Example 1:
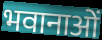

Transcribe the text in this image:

भवानाओं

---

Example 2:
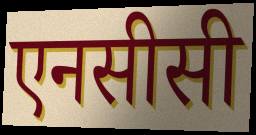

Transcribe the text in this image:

एनसीसी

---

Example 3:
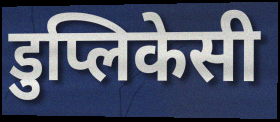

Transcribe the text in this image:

डुप्लिकेसी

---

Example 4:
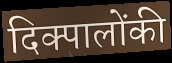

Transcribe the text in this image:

दिक्पालोंकी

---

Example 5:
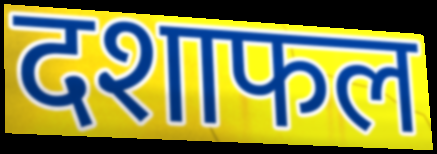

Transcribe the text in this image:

दशाफल